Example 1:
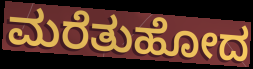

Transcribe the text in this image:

ಮರೆತುಹೋದ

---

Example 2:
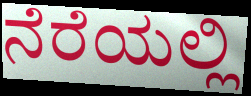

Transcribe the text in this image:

ನೆರೆಯಲ್ಲಿ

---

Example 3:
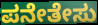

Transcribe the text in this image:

ಪನೇತೇಸು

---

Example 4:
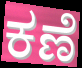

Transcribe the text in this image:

ಕಣೆ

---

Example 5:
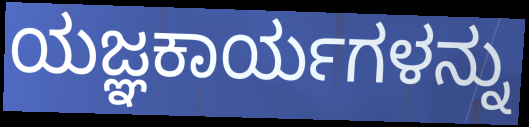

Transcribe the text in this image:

ಯಜ್ಞಕಾರ್ಯಗಳನ್ನು